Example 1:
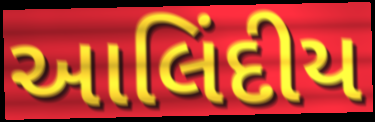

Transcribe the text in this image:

આલિંદીય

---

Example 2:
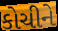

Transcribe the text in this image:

કોચીને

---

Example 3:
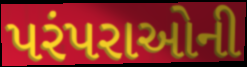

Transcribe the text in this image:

પરંપરાઓની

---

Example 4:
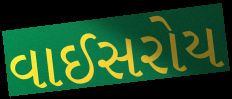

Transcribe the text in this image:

વાઈસરોય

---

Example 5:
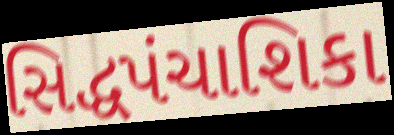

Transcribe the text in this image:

સિદ્ધપંચાશિકા